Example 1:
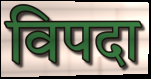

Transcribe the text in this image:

विपदा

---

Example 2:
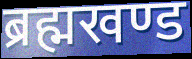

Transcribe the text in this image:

ब्रह्मखण्ड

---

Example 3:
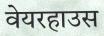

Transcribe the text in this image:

वेयरहाउस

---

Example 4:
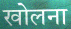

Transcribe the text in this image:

खोलना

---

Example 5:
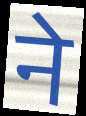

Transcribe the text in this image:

ने